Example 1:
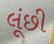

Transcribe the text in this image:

લૂંછી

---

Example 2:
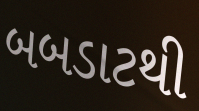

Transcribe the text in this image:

બબડાટથી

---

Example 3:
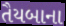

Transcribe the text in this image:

તૈયબાના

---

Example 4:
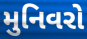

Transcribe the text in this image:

મુનિવરો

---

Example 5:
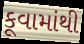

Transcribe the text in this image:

કૂવામાંથી